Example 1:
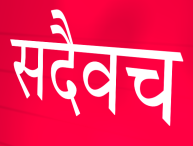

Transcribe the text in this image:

सदैवच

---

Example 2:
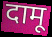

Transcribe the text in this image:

दामू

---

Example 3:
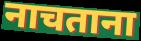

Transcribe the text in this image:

नाचताना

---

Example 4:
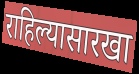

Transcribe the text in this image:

राहिल्यासारखा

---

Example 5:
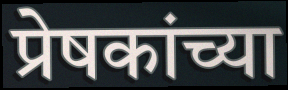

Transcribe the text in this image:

प्रेषकांच्या